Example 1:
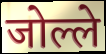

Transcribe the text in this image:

जोल्ले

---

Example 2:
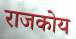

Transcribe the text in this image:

राजकोय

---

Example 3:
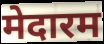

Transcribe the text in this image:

मेदारम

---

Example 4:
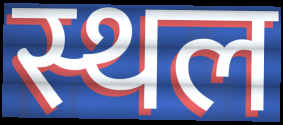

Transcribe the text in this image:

स्थल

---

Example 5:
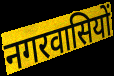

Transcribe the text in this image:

नगरवासियों